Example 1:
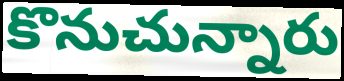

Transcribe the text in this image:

కొనుచున్నారు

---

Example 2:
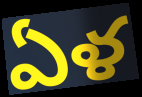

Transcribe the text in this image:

ఏళ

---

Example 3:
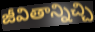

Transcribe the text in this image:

జీవితాన్నిచ్చి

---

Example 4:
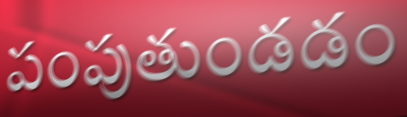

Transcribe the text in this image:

పంపుతుండడం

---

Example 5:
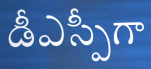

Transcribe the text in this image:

డీఎస్పీగా